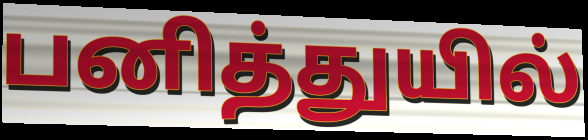
பனித்துயில்